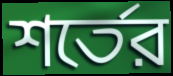
শর্তের